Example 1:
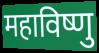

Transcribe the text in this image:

महाविष्णु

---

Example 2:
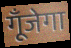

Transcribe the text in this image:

गूँजेगा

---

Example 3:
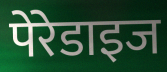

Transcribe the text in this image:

पेरेडाइज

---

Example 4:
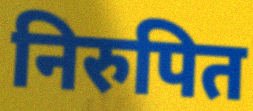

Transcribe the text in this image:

निरुपित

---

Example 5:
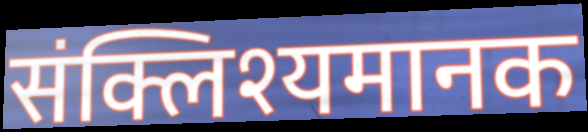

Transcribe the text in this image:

संक्लिश्यमानक